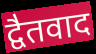
द्वैतवाद